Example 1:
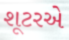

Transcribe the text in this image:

શૂટરએ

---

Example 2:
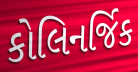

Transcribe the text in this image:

કોલિનર્જિક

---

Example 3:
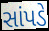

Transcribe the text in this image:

સાંપડે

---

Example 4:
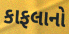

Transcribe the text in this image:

કાફલાનો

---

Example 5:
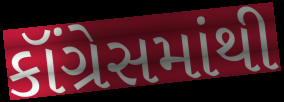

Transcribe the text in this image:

કૉંગ્રેસમાંથી